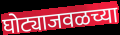
घोट्याजवळच्या